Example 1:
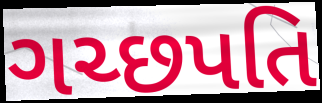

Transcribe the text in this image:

ગચ્છપતિ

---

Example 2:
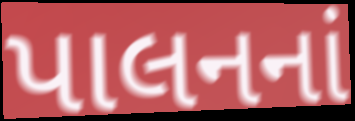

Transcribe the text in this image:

પાલનનાં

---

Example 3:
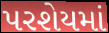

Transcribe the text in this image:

પરશેયમાં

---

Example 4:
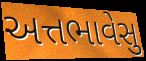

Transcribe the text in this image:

અત્તભાવેસુ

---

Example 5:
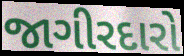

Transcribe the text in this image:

જાગીરદારો